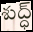
శుద్ధ్